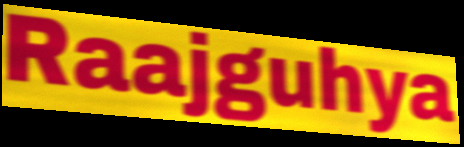
Raajguhya